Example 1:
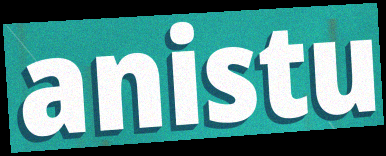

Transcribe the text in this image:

anistu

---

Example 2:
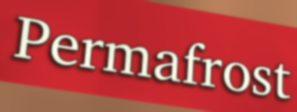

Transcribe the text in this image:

Permafrost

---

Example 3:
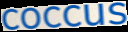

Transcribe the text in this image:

coccus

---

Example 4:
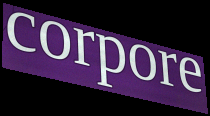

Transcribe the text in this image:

corpore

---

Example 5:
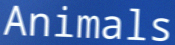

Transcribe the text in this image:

Animals